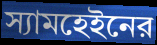
স্যামহেইনের